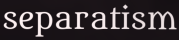
separatism